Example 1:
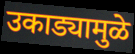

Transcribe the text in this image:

उकाड्यामुळे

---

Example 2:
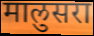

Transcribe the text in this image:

मालुसरा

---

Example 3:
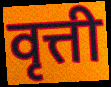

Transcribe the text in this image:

वृत्ती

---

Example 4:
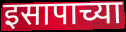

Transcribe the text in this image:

इसापाच्या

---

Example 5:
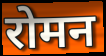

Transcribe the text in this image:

रोमन